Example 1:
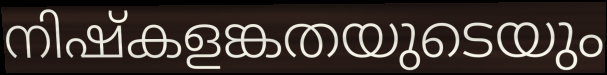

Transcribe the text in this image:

നിഷ്കളങ്കതയുടെയും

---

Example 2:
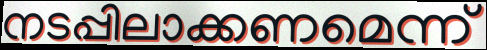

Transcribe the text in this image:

നടപ്പിലാക്കണമെന്ന്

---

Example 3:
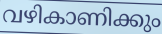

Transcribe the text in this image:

വഴികാണിക്കും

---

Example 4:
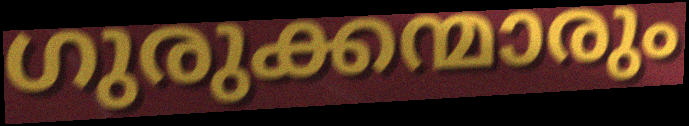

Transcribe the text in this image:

ഗുരുക്കന്മാരും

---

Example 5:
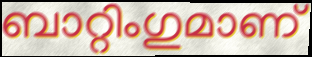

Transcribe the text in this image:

ബാറ്റിംഗുമാണ്